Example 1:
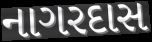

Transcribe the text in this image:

નાગરદાસ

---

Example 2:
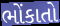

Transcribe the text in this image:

ભોંકાતો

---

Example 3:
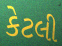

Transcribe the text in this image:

કેટલી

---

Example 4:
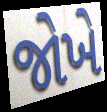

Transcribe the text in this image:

જોખે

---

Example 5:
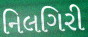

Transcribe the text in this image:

નિલગિરી